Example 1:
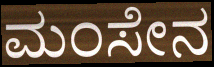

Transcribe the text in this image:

ಮಂಸೇನ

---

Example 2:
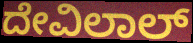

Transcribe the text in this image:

ದೇವಿಲಾಲ್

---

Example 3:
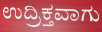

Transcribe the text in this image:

ಉದ್ರಿಕ್ತವಾಗು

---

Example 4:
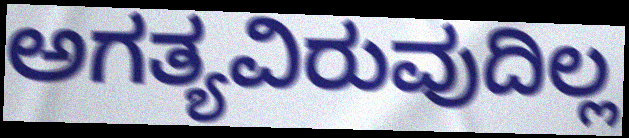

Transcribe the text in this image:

ಅಗತ್ಯವಿರುವುದಿಲ್ಲ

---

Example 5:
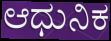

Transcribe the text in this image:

ಆಧುನಿಕ